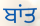
ਬਾਂਤ